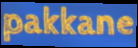
pakkane